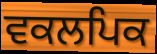
ਵਕਲਪਿਕ